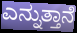
ಎನ್ನುತ್ತಾನೆ